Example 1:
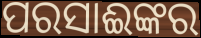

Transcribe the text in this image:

ପରସାଈଙ୍କର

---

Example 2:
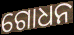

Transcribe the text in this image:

ଗୋଧନ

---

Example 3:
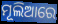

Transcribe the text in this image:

ମୂଲିଆରେ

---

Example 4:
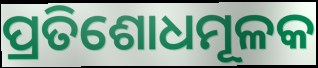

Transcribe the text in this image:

ପ୍ରତିଶୋଧମୂଳକ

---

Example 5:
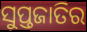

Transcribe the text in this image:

ସୁପ୍ତଜାତିର